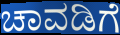
ಚಾವಡಿಗೆ